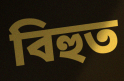
বিহুত